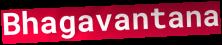
Bhagavantana